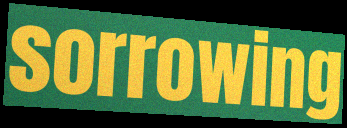
sorrowing